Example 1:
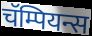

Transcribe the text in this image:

चॅम्पियन्स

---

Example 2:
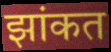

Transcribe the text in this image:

झांकत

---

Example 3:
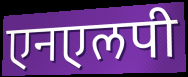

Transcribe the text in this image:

एनएलपी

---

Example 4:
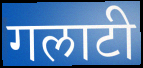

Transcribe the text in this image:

गलाटी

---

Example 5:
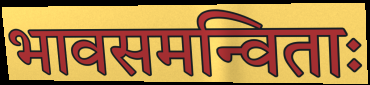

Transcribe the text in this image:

भावसमन्विताः